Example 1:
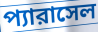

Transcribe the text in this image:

প্যারাসেল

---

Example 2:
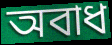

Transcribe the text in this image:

অবাধ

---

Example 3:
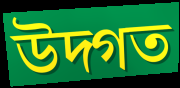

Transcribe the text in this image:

উদ্গত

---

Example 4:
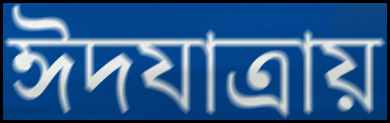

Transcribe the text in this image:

ঈদযাত্রায়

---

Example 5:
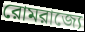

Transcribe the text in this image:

রোমরাজ্যে